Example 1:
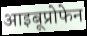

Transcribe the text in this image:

आइबूप्रोफेन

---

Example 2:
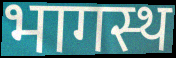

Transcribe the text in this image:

भागस्थ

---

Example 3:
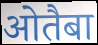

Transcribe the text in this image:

ओतैबा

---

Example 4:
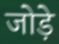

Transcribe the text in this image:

जोड़े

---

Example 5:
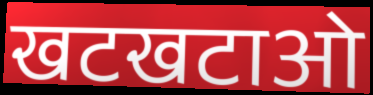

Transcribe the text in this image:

खटखटाओ